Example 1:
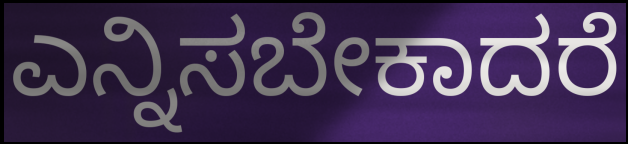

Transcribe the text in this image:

ಎನ್ನಿಸಬೇಕಾದರೆ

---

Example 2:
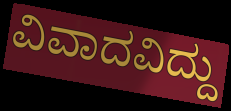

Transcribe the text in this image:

ವಿವಾದವಿದ್ದು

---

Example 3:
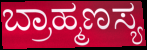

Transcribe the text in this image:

ಬ್ರಾಹ್ಮಣಸ್ಯ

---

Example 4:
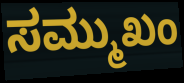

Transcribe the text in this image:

ಸಮ್ಮುಖಂ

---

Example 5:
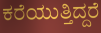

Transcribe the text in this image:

ಕರೆಯುತ್ತಿದ್ದರೆ